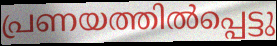
പ്രണയത്തിൽപ്പെട്ടു